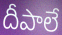
దీపాలే